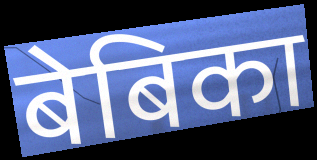
बेबिका